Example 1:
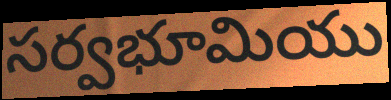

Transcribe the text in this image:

సర్వభూమియు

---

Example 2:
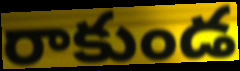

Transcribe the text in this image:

రాకుండ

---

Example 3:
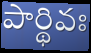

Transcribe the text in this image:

పార్థివః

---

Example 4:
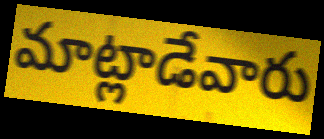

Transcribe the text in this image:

మాట్లాడేవారు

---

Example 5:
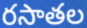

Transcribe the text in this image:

రసాతల